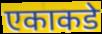
एकाकडे